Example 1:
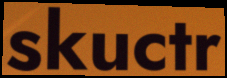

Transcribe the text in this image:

skuctr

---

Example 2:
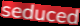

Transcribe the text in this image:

seduced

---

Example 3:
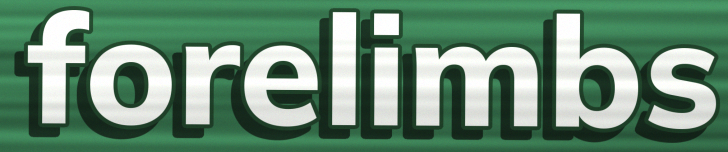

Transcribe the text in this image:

forelimbs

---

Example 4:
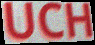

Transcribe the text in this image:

UCH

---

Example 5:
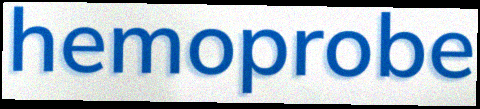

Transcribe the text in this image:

hemoprobe